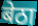
बेठा